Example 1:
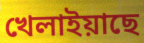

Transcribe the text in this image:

খেলাইয়াছে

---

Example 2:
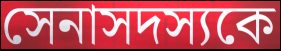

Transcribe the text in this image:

সেনাসদস্যকে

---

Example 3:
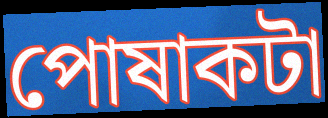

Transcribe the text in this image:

পোষাকটা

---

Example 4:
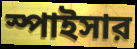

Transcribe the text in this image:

স্পাইসার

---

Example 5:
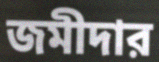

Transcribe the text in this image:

জমীদার